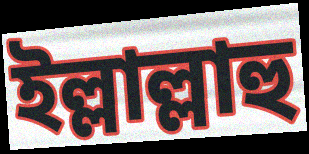
ইল্লাল্লাহু